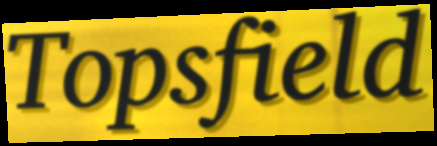
Topsfield